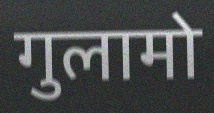
गुलामो